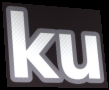
ku